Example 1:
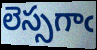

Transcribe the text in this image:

లెస్సగాఁ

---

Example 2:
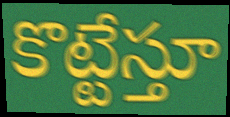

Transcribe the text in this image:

కొట్టేస్తూ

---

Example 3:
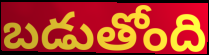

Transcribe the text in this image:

బడుతోంది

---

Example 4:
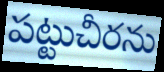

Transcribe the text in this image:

పట్టుచీరను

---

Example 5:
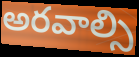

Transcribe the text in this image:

అరవాల్సి